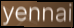
yennai